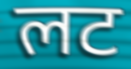
लट